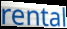
rental